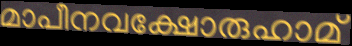
മാപീനവക്ഷോരുഹാമ്